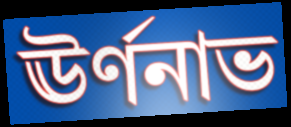
ঊর্ণনাভ